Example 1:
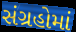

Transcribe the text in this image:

સંગ્રહોમાં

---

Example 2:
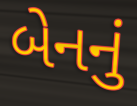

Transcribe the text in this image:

બેનનું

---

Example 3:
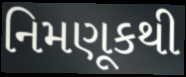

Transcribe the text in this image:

નિમણૂકથી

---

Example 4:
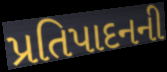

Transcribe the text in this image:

પ્રતિપાદનની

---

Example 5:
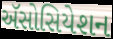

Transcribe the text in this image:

ઍસોસિયેશન